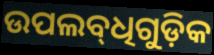
ଉପଲବ୍‌ଧିଗୁଡ଼ିକ